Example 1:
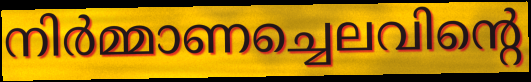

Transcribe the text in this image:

നിർമ്മാണച്ചെലവിന്റെ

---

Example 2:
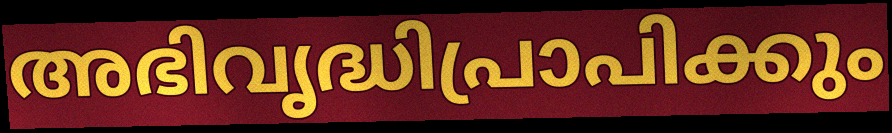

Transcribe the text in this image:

അഭിവൃദ്ധിപ്രാപിക്കും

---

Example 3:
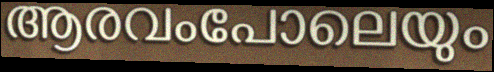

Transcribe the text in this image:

ആരവംപോലെയും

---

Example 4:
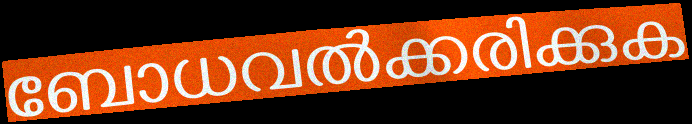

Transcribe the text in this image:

ബോധവൽക്കരിക്കുക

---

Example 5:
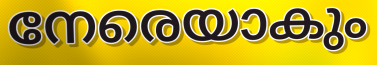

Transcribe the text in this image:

നേരെയാകും